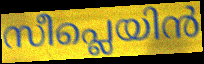
സീപ്ലെയിൻ